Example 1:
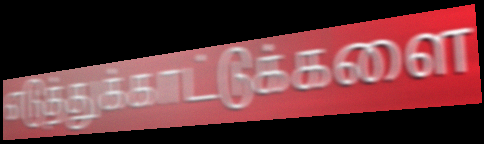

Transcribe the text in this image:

எடுத்துக்காட்டுக்களை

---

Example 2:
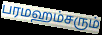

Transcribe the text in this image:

பரமஹம்சரும்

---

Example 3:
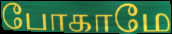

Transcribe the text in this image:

போகாமே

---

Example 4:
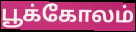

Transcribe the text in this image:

பூக்கோலம்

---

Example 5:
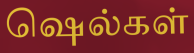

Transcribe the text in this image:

ஷெல்கள்